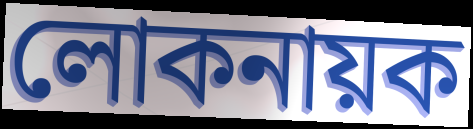
লোকনায়ক